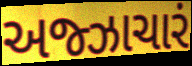
અજ્ઝાચારં